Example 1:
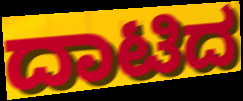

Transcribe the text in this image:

ದಾಟಿದ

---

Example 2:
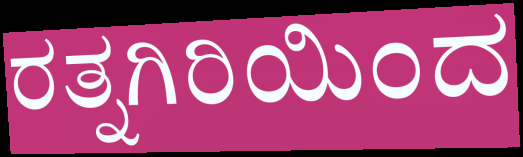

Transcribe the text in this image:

ರತ್ನಗಿರಿಯಿಂದ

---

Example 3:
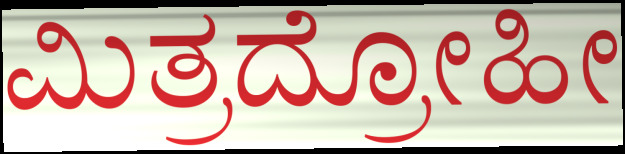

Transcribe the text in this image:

ಮಿತ್ರದ್ರೋಹೀ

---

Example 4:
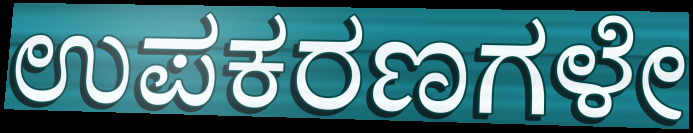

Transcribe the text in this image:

ಉಪಕರಣಗಳೇ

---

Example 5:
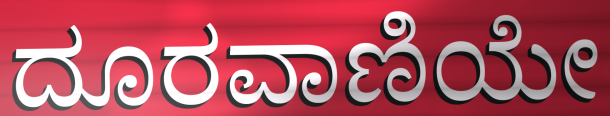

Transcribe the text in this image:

ದೂರವಾಣಿಯೇ